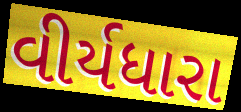
વીર્યધારા